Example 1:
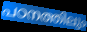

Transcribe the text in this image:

പഠനത്തിലും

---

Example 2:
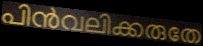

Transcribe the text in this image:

പിൻവലിക്കരുതേ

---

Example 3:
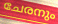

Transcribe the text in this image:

ചേരനും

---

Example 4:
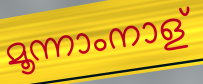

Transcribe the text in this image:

മൂന്നാംനാള്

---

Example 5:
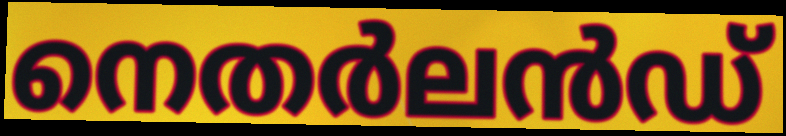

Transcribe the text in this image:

നെതർലൻഡ്